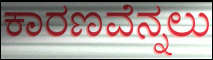
ಕಾರಣವೆನ್ನಲು